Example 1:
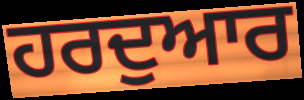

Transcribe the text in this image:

ਹਰਦੁਆਰ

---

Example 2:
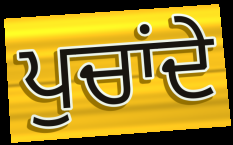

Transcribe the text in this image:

ਪੁਚਾਂਦੇ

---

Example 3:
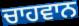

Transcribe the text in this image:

ਚਾਹਵਾਨ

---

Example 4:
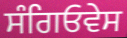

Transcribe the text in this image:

ਸੰਗਿਓਵੇਸ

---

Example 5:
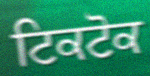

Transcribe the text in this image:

ਟਿਕਟੋਕ